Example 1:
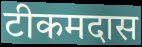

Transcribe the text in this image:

टीकमदास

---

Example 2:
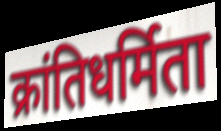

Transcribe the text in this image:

क्रांतिधर्मिता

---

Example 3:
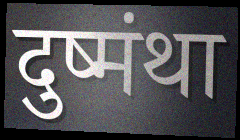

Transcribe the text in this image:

दुष्मंथा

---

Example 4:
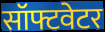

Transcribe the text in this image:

सॉफ्टवेटर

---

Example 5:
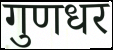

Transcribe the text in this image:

गुणधर